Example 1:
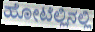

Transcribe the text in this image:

ಹೋಟೆಲ್ಲಿನಲ್ಲಿ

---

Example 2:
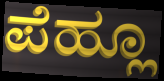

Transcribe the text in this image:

ಪೆಹ್ಲೂ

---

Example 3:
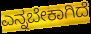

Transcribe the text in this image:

ಎನ್ನಬೇಕಾಗಿದೆ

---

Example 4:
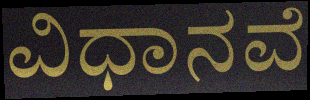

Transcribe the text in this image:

ವಿಧಾನವೆ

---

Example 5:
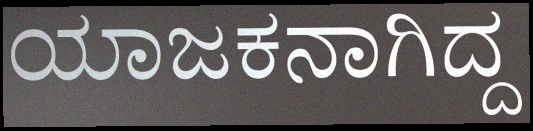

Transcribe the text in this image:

ಯಾಜಕನಾಗಿದ್ದ